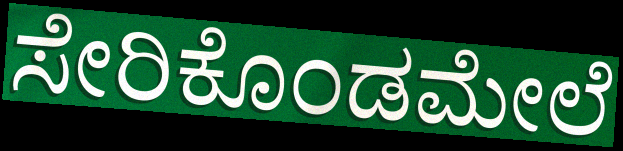
ಸೇರಿಕೊಂಡಮೇಲೆ